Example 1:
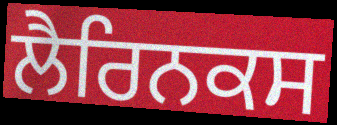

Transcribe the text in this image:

ਲੈਰਿਨਕਸ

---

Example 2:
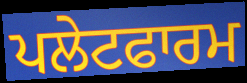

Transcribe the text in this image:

ਪਲੇਟਫਾਰਮ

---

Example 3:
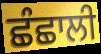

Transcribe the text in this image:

ਛੰਛਾਲੀ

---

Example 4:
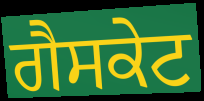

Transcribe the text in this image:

ਗੈਸਕੇਟ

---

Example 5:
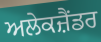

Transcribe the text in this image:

ਅਲੇਕਜ਼ੈਂਡਰ